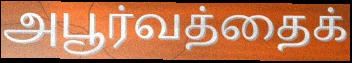
அபூர்வத்தைக்